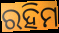
ରହିମ